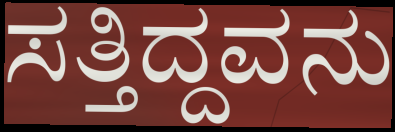
ಸತ್ತಿದ್ದವನು